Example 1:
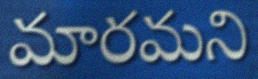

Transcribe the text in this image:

మారమని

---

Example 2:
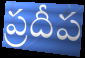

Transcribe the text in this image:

ప్రదీప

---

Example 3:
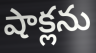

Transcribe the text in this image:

షాక్లను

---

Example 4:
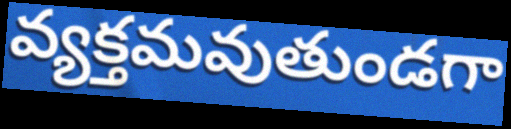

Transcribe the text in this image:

వ్యక్తమవుతుండగా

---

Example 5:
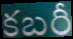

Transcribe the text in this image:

కబరీ